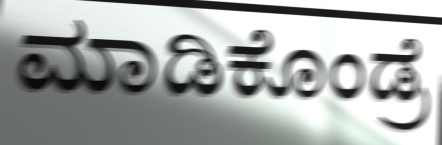
ಮಾಡಿಕೊಂಡ್ರೆ